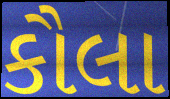
કૌલા